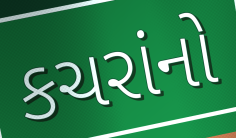
કચરાંનો